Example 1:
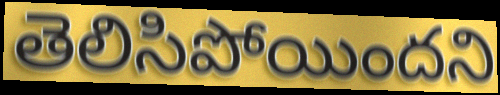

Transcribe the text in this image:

తెలిసిపోయిందని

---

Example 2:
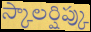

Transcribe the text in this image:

స్కాలర్షిప్కు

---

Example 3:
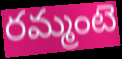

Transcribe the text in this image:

రమ్మంటె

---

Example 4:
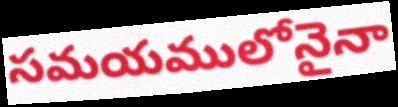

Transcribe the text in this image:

సమయములోనైనా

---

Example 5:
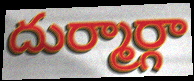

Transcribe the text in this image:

దుర్మార్గా